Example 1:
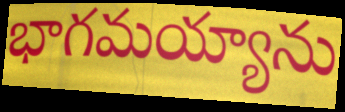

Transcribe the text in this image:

భాగమయ్యాను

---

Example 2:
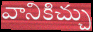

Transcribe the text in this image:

వానికిచ్చు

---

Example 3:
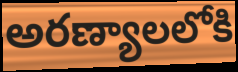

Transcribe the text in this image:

అరణ్యాలలోకి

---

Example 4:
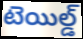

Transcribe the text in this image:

టెయిల్డ్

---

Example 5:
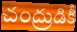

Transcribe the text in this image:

చంద్రుడికీ